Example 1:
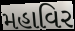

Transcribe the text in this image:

મહાવિર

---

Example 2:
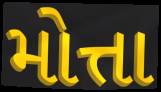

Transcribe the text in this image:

મોત્તા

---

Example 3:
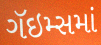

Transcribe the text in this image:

ગૅઇમ્સમાં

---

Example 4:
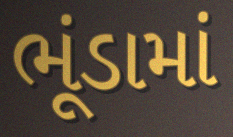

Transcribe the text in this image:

ભૂંડામાં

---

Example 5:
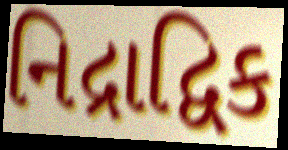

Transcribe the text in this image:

નિદ્રાદ્વિક